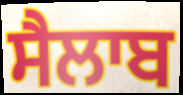
ਸੈਲਾਬ